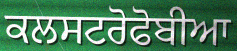
ਕਲਸਟਰੋਫੋਬੀਆ